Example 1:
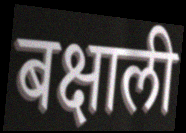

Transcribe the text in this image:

बक्षाली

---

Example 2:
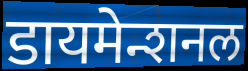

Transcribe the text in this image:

डायमेन्शनल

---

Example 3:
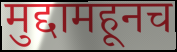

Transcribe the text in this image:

मुद्दामहूनच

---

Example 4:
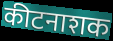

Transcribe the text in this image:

कीटनाशक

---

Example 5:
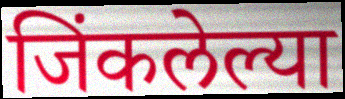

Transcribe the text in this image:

जिंकलेल्या